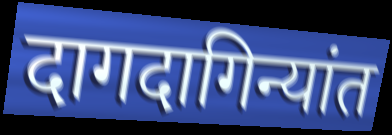
दागदागिन्यांत